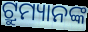
ଟ୍ରୁମ୍ୟାନଙ୍କ